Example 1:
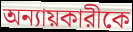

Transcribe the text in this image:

অন্যায়কারীকে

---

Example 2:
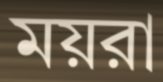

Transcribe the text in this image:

ময়রা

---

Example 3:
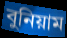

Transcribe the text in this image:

বুনিয়াম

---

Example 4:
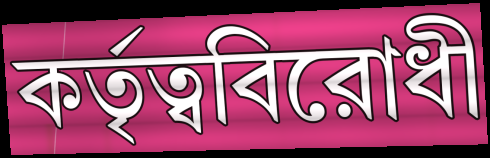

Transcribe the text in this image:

কর্তৃত্ববিরোধী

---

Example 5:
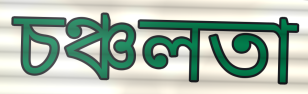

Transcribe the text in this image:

চঞ্চলতা